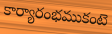
కార్యారంభముకంటె